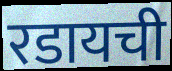
रडायची